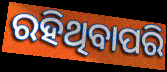
ରହିଥିବାପରି